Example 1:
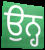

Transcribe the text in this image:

ਉਨ੍ਹ੍ਹ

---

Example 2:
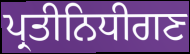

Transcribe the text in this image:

ਪ੍ਰਤੀਨਿਧੀਗਣ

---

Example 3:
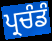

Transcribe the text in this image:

ਪ੍ਰਚੰਡੰ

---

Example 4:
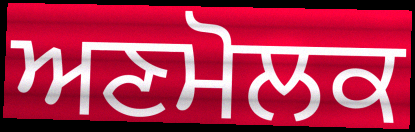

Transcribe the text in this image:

ਅਣਮੋਲਕ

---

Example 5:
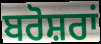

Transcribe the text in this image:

ਬਰੋਸ਼ਰਾਂ